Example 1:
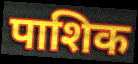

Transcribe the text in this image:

पाशिक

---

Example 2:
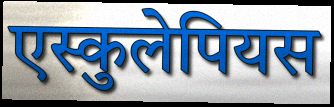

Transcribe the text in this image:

एस्कुलेपियस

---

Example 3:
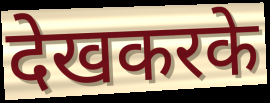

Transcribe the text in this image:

देखकरके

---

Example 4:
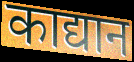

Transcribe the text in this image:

काद्यान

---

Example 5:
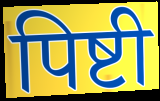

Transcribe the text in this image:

पिष्टी